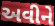
અવીને